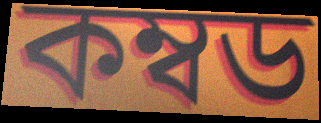
কম্বড